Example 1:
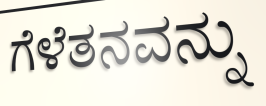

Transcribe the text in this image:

ಗೆಳೆತನವನ್ನು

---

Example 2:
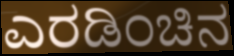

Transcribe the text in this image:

ಎರಡಿಂಚಿನ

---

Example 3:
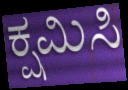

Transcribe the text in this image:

ಕ್ಷಮಿಸಿ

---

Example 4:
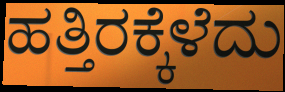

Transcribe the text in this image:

ಹತ್ತಿರಕ್ಕೆಳೆದು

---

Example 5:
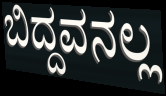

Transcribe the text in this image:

ಬಿದ್ದವನಲ್ಲ